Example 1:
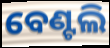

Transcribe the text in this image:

ବେଣ୍ଟଲି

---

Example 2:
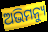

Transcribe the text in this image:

ଅଭିମନ୍ଯୁ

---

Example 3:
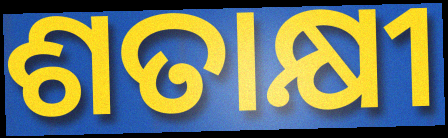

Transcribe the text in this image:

ଶତାକ୍ଷୀ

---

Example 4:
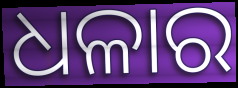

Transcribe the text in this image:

ଧଳାର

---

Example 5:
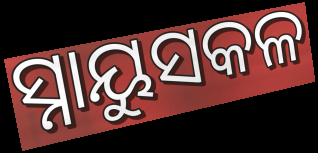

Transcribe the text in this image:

ସ୍ନାୟୁସକଳ